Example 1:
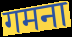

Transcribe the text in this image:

गमना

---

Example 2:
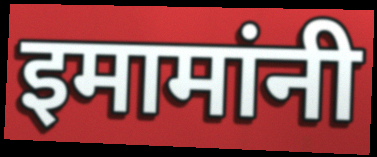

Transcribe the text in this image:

इमामांनी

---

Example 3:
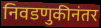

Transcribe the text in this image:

निवडणुकीनंतर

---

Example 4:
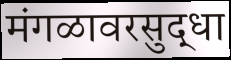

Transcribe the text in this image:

मंगळावरसुद्धा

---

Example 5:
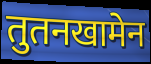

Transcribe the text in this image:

तुतनखामेन